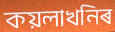
কয়লাখনিৰ